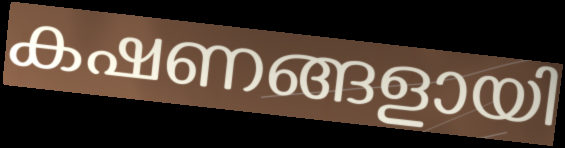
കഷണങ്ങളായി